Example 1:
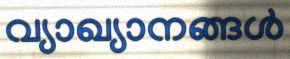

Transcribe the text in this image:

വ്യാഖ്യാനങ്ങൾ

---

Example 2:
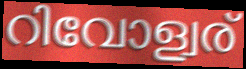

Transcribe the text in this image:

റിവോള്വര്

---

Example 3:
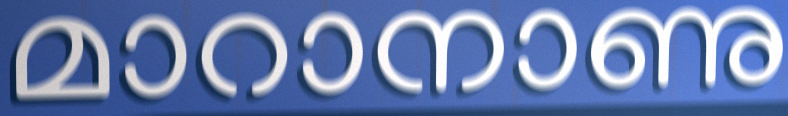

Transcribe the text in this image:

മാറാനാണു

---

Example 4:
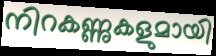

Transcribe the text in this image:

നിറകണ്ണുകളുമായി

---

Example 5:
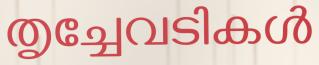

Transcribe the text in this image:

തൃച്ചേവടികൾ